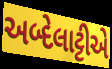
અબ્દેલાટ્ટીએ